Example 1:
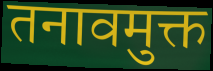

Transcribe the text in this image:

तनावमुक्त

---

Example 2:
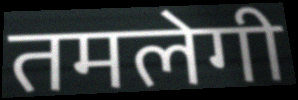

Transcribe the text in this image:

तमलेगी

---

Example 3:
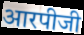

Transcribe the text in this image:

आरपीजी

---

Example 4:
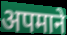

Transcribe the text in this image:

अपमाने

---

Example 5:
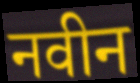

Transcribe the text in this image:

नवीन